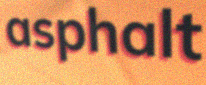
asphalt